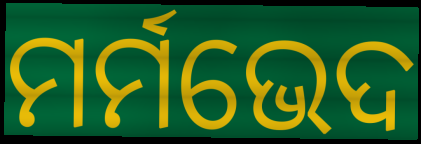
ମର୍ମଭେଦ